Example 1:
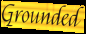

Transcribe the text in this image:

Grounded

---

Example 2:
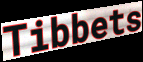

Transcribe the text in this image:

Tibbets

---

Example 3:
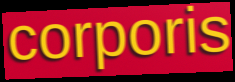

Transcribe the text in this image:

corporis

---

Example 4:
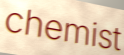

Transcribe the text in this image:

chemist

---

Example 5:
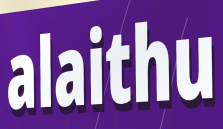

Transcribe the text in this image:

alaithu